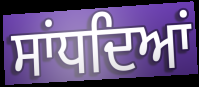
ਸਾਂਧਦਿਆਂ